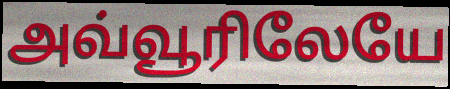
அவ்வூரிலேயே